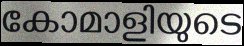
കോമാളിയുടെ